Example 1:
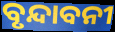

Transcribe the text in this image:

ବୃନ୍ଦାବନୀ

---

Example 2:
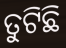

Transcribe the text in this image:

ତୁଟିଛି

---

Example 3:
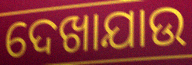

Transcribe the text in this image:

ଦେଖାଯାଉ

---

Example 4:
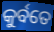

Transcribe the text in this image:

କୁର୍ବତେ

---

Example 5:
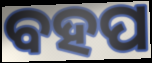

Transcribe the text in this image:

ବହପ